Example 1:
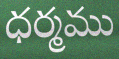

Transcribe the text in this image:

ధర్మము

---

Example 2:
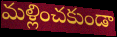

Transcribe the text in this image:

మళ్లించకుండా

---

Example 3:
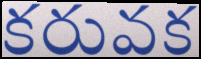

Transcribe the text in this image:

కరువక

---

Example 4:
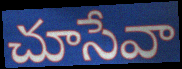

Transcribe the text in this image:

చూసేవా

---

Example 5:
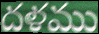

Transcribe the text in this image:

దళము